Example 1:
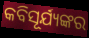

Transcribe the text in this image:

କବିସୂର୍ଯ୍ୟଙ୍କର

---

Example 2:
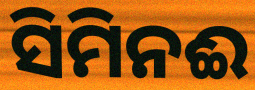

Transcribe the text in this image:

ସିମିନଈ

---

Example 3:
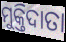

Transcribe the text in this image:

ମୁକ୍ତିଦାତା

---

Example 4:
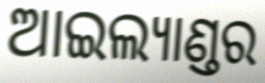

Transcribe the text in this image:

ଆଇଲ୍ୟାଣ୍ଡର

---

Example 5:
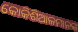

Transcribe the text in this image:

କୋକିଶିଆଳମାନଙ୍କ